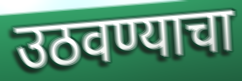
उठवण्याचा